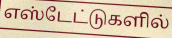
எஸ்டேட்டுகளில்